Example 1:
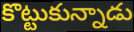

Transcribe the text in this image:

కొట్టుకున్నాడు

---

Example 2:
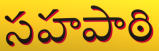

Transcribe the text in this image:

సహపాఠి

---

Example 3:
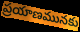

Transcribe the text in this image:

ప్రయాణమునకు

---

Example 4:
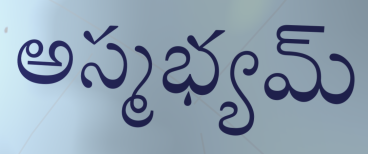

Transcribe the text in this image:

అస్మభ్యమ్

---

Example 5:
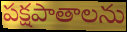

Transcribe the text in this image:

పక్షపాతాలను